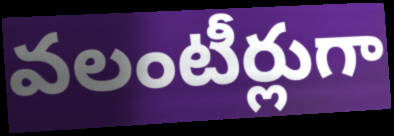
వలంటీర్లుగా